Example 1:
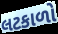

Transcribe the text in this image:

લટકાળો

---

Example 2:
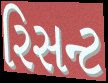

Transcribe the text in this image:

રિસન્ટ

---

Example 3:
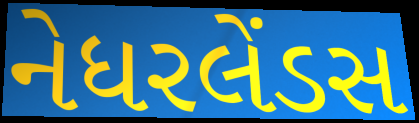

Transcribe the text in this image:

નેધરલેંડસ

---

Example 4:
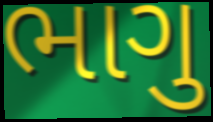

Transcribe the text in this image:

ભાગુ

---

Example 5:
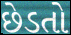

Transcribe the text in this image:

છેડતો